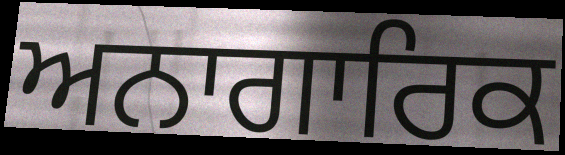
ਅਨਾਗਾਰਿਕ